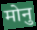
मोनु